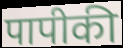
पापीकी